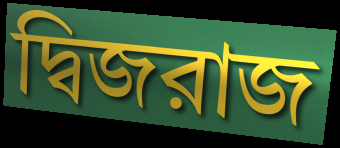
দ্বিজরাজ